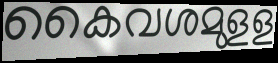
കൈവശമുളള